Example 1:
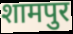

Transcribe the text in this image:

शामपुर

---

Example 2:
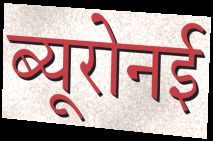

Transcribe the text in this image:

ब्यूरोनई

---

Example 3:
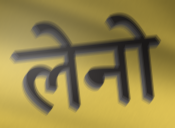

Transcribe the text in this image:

लेनो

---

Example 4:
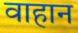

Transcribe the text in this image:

वाहान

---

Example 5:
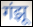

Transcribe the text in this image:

गंझू